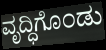
ವೃದ್ಧಿಗೊಂಡು